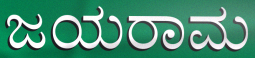
ಜಯರಾಮ